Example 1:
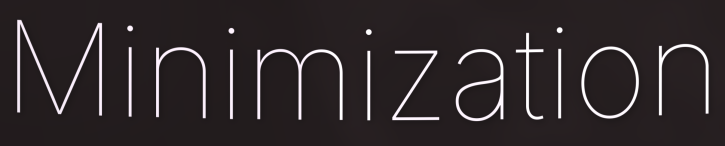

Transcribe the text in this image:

Minimization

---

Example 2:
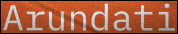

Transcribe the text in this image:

Arundati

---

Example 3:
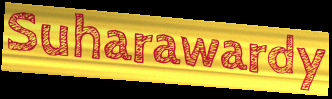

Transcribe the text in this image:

Suharawardy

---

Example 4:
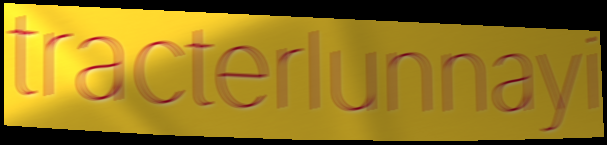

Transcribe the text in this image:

tracterlunnayi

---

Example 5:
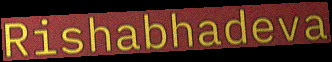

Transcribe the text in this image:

Rishabhadeva